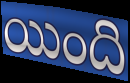
యింది